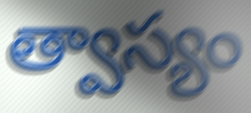
త్వాస్యం